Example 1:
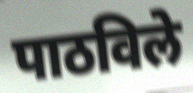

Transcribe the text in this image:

पाठविले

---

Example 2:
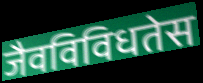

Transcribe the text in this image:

जैवविविधतेस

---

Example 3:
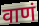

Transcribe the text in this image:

वाणं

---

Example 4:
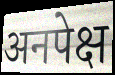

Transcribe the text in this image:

अनपेक्ष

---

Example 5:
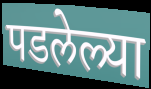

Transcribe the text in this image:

पडलेल्या